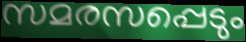
സമരസപ്പെടും